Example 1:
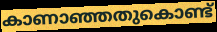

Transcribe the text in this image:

കാണാഞ്ഞതുകൊണ്ട്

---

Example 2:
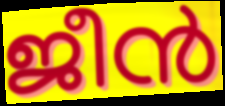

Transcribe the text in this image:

ജീൻ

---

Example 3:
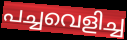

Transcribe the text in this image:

പച്ചവെളിച്ച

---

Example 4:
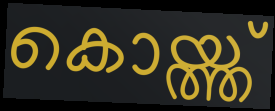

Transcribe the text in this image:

കൊയ്ത്ത്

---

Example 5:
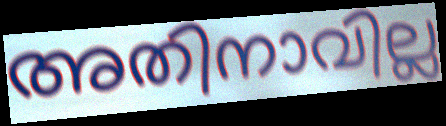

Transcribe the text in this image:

അതിനാവില്ല